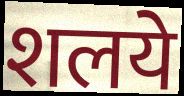
शलये